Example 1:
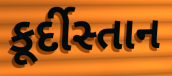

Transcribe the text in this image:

કૂર્દીસ્તાન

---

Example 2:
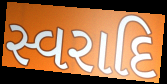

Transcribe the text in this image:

સ્વરાદિ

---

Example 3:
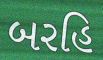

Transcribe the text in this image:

બરહિ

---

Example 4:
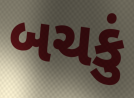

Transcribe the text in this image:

બચકું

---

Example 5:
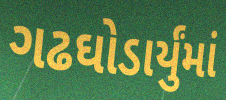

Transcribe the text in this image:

ગઢઘોડાર્યુંમાં